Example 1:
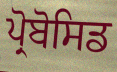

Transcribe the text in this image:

ਪ੍ਰੋਬੋਸਿਡ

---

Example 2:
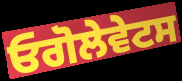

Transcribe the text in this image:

ਓਗੋਲੇਵੇਟਸ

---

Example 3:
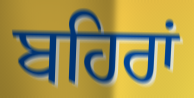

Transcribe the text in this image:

ਬਹਿਰਾਂ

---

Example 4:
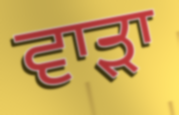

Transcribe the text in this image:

ਵਾੜਾ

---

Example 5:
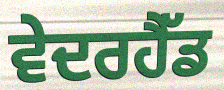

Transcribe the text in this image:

ਵੇਦਰਹੈੱਡ